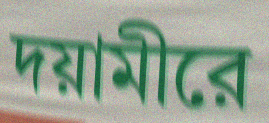
দয়ামীরে